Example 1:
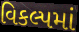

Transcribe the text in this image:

વિકલ્પમાં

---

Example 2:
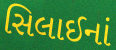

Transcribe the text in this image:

સિલાઈનાં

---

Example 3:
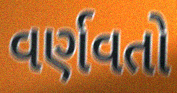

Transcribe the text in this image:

વર્ણવતો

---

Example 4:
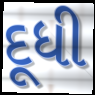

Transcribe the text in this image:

દૂધી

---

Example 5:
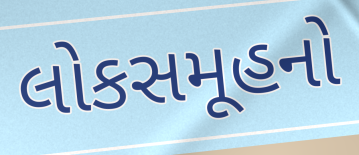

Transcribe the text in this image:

લોકસમૂહનો